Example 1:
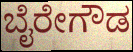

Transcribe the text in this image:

ಬೈರೇಗೌಡ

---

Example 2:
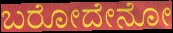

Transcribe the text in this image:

ಬರೋದೇನೋ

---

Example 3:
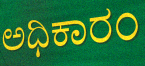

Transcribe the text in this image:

ಅಧಿಕಾರಂ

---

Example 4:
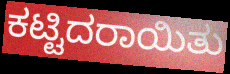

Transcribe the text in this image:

ಕಟ್ಟಿದರಾಯಿತು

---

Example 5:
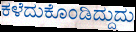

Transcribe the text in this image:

ಕಳೆದುಕೊಂಡಿದ್ದುದು